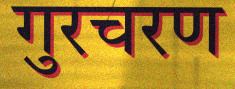
गुरचरण